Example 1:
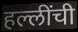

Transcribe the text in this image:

हल्लींची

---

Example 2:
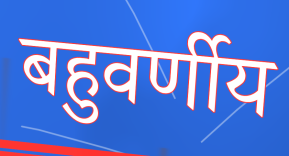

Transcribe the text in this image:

बहुवर्णीय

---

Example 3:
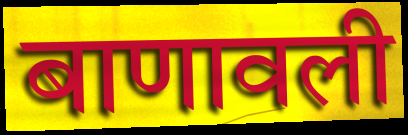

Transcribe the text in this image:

बाणावली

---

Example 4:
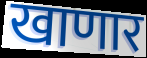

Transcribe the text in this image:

खाणार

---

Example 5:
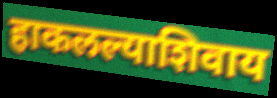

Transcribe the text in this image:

हाकलल्याशिवाय